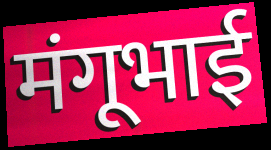
मंगूभाई